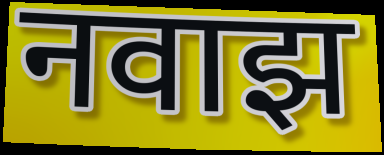
नवाझ